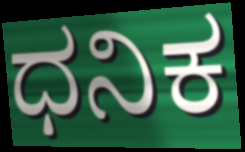
ಧನಿಕ